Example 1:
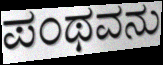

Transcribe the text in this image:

ಪಂಥವನು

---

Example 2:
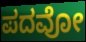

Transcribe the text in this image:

ಪದವೋ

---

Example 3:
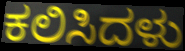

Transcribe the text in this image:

ಕಲಿಸಿದಳು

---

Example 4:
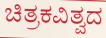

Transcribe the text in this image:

ಚಿತ್ರಕವಿತ್ವದ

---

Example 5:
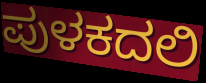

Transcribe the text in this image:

ಪುಳಕದಲಿ